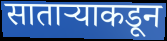
साताऱ्याकडून